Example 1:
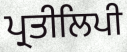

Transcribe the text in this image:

ਪ੍ਰਤੀਲਿਪੀ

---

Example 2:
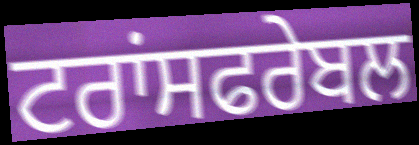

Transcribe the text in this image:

ਟਰਾਂਸਫਰੇਬਲ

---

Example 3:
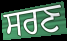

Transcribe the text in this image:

ਸਰਣ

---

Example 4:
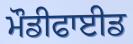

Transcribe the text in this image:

ਮੌਡੀਫਾਈਡ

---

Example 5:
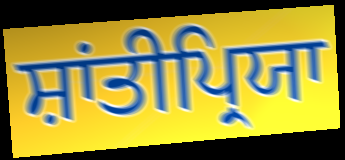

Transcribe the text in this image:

ਸ਼ਾਂਤੀਪ੍ਰਿਯਾ